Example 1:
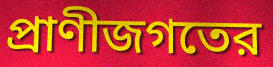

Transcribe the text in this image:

প্রাণীজগতের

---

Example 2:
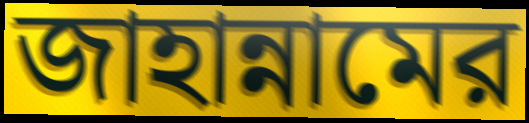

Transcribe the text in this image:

জাহান্নামের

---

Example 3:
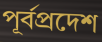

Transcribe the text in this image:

পূর্বপ্রদেশ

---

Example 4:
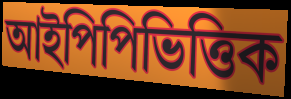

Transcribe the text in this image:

আইপিপিভিত্তিক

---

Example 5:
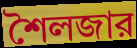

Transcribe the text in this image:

শৈলজার